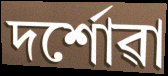
দৰ্শোৱা